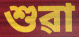
শুৱা